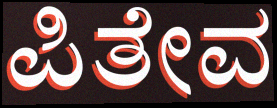
ಪಿತೇವ